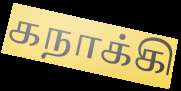
கநாக்கி